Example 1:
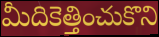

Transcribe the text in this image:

మీదికెత్తించుకొని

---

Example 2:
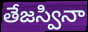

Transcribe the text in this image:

తేజస్వినా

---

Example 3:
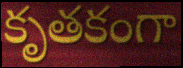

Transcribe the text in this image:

కృతకంగా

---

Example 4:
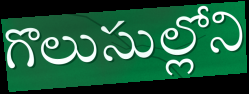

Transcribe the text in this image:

గొలుసుల్లోని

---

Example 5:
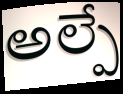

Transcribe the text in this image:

అల్పే